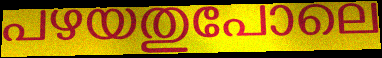
പഴയതുപോലെ